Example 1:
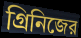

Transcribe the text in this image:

গ্রিনিজের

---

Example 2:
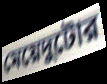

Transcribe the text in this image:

মেয়েদুটোর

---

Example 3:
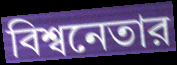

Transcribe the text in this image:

বিশ্বনেতার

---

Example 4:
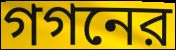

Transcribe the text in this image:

গগনের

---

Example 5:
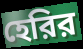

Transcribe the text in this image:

হেরির